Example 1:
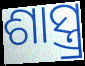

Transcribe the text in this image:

ଶାସ୍ତ୍ର୍ର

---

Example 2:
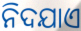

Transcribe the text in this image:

ନିଦଯାଏ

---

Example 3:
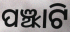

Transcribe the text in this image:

ପଞ୍ଝାଟି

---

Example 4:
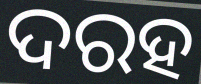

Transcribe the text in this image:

ଦରହ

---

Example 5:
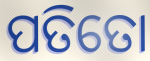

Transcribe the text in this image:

ପତିତୋ